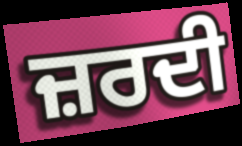
ਜ਼ਰਦੀ